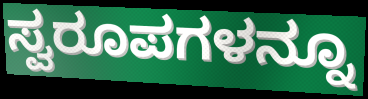
ಸ್ವರೂಪಗಳನ್ನೂ